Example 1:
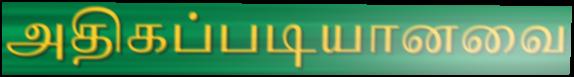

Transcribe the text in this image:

அதிகப்படியானவை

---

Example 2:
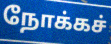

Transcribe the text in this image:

நோக்கச்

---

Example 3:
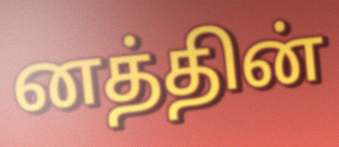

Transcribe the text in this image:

னத்தின்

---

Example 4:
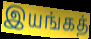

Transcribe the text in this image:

இயங்கத்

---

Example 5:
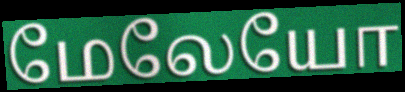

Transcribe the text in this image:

மேலேயோ